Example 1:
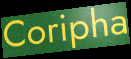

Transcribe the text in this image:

Coripha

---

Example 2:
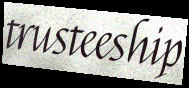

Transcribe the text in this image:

trusteeship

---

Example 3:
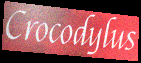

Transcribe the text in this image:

Crocodylus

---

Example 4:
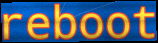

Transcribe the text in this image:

reboot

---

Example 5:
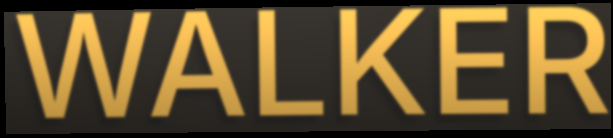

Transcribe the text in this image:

WALKER